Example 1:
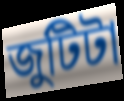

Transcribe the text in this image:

জুটিটা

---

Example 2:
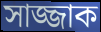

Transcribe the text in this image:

সাজ্জাক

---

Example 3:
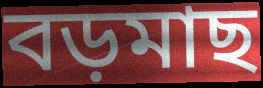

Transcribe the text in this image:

বড়মাছ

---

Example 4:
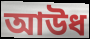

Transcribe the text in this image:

আউধ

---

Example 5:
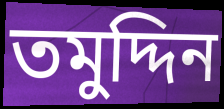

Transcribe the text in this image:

তমুদ্দিন